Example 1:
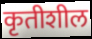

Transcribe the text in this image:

कृतीशील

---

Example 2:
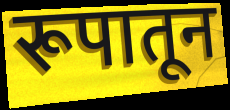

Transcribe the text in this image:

रूपातून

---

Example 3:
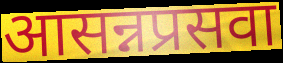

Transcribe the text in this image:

आसन्नप्रसवा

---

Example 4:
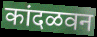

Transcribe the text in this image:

कांदळवन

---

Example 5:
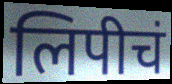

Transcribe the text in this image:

लिपीचं